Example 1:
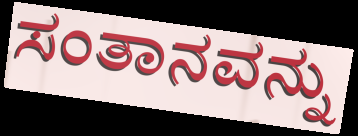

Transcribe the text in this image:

ಸಂತಾನವನ್ನು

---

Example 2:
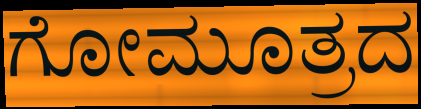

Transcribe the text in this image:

ಗೋಮೂತ್ರದ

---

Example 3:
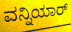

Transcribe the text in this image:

ವನ್ನಿಯಾರ್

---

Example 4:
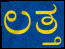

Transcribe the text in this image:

ಲತ್ತ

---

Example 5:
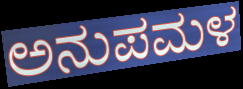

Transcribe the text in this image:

ಅನುಪಮಳ